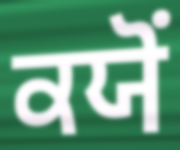
ਕਯੋਂ